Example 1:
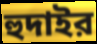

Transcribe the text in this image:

হুদাইর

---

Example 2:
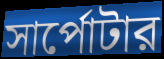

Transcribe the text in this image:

সার্পোটার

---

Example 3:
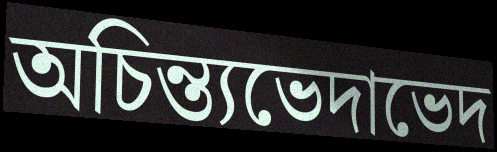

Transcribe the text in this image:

অচিন্ত্যভেদাভেদ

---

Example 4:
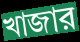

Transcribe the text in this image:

খাজার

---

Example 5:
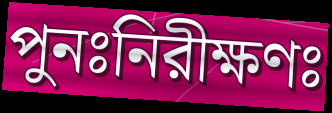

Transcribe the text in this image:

পুনঃনিরীক্ষণঃ